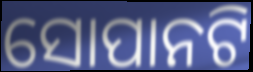
ସୋପାନଟି